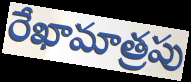
రేఖామాత్రపు